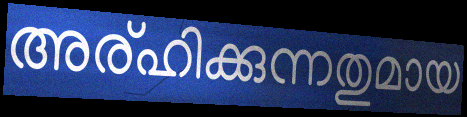
അര്ഹിക്കുന്നതുമായ